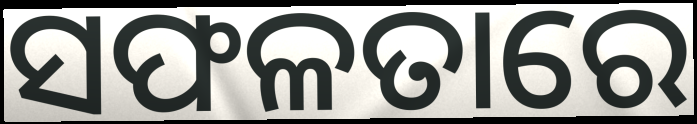
ସଫଳତାରେ